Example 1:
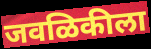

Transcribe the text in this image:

जवळिकीला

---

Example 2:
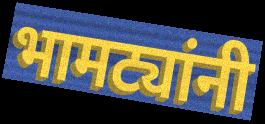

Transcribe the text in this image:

भामट्यांनी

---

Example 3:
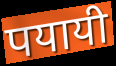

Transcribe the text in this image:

पयायी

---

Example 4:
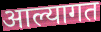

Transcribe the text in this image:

आल्यागत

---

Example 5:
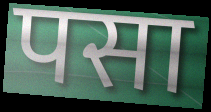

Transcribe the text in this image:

पसा